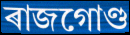
ৰাজগোণ্ড